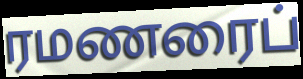
ரமணரைப்